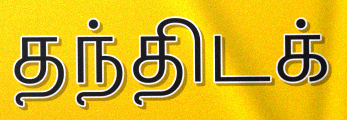
தந்திடக்